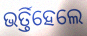
ଭର୍ତ୍ତିହେଲେ